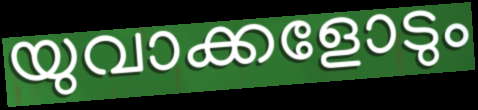
യുവാക്കളോടും